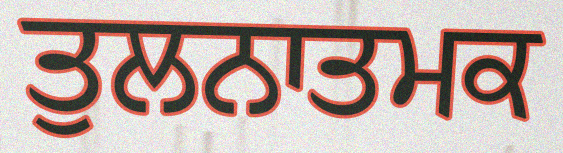
ਤੁਲਨਾਤਮਕ